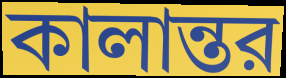
কালান্তর